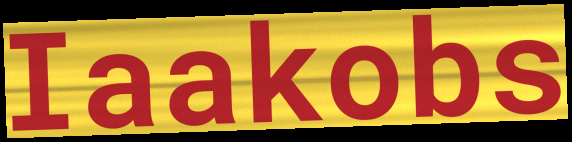
Iaakobs